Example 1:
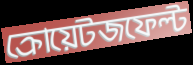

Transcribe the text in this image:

ক্রোয়েটজফেল্ট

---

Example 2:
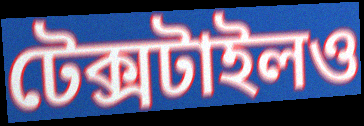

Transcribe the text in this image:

টেক্সটাইলও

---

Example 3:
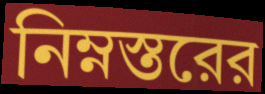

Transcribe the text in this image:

নিম্নস্তরের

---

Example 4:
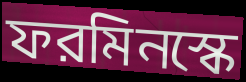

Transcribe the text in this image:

ফরমিনস্কে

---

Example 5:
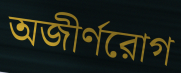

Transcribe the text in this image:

অজীর্ণরোগ